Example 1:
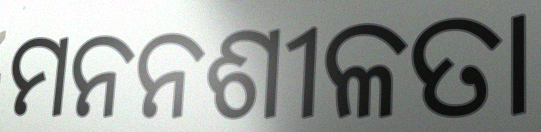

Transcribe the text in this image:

ମନନଶୀଳତା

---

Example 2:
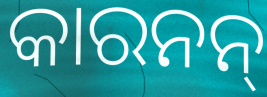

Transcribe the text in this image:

କାରନନ୍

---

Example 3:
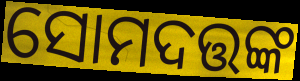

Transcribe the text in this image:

ସୋମଦତ୍ତଙ୍କ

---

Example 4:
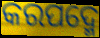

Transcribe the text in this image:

କରପଦ୍ମେ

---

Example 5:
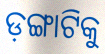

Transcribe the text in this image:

ଡ଼ଙ୍ଗାଟିକୁ